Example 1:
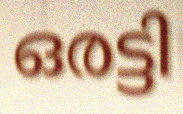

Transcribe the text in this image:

ഒരട്ടി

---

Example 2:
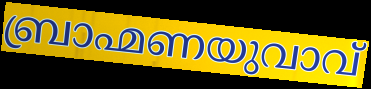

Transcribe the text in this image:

ബ്രാഹ്മണയുവാവ്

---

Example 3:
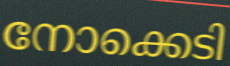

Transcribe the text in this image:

നോക്കെടി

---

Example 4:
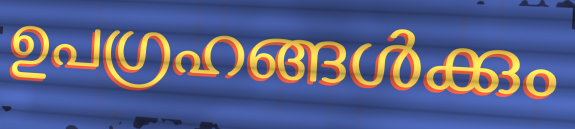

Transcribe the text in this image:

ഉപഗ്രഹങ്ങൾക്കും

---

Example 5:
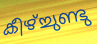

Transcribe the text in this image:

കീഴ്ച്ചുണ്ടു